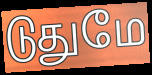
டுதுமே